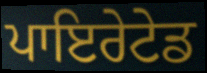
ਪਾਇਰੇਟੇਡ